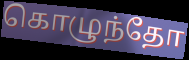
கொழுந்தோ